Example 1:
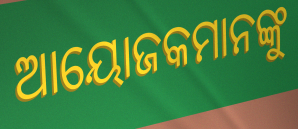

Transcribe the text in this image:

ଆୟୋଜକମାନଙ୍କୁ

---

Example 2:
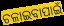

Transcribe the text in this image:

ଚଳାଇବାପାଇଁ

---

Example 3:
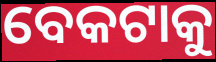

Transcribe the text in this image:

ବେକଟାକୁ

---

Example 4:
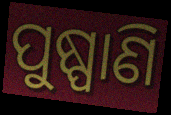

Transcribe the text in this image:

ପୁଷ୍ପାଣି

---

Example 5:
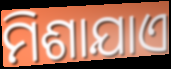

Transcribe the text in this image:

ମିଶାଯାଏ